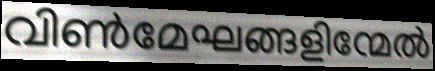
വിൺമേഘങ്ങളിന്മേൽ